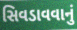
સિવડાવવાનું